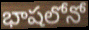
భాషలోనో